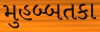
મુહબ્બતકા